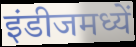
इंडीजमध्यें